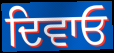
ਦਿਵਾਓ